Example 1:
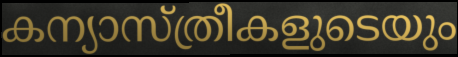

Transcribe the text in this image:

കന്യാസ്ത്രീകളുടെയും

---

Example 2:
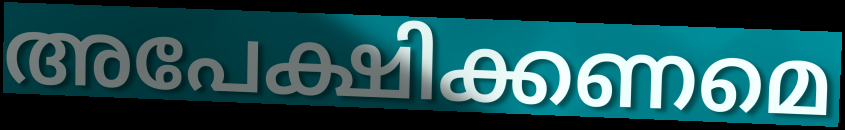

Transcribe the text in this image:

അപേക്ഷിക്കണമെ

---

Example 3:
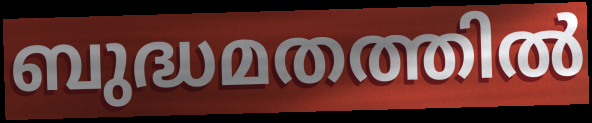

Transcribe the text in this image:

ബുദ്ധമതത്തിൽ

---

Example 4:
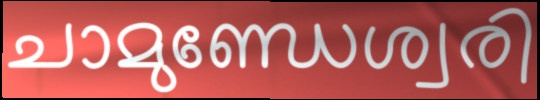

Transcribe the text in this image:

ചാമുണ്ഡേശ്വരി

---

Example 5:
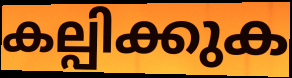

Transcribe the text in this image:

കല്പിക്കുക